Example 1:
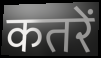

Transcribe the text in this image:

कतरें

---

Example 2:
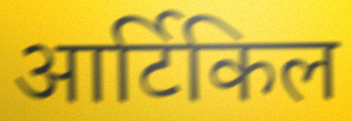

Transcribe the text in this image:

आर्टिकिल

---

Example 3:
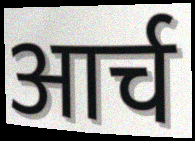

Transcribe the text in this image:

आर्च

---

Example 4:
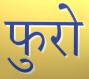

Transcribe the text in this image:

फुरो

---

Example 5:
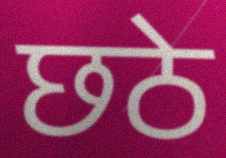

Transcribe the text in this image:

छठे